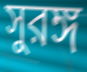
সুরঙ্গ